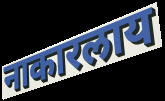
नाकारलाय